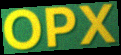
OPX